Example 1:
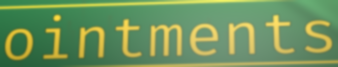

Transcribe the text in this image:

ointments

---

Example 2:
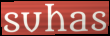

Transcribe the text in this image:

suhas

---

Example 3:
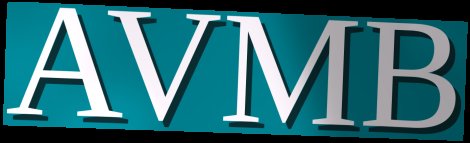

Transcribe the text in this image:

AVMB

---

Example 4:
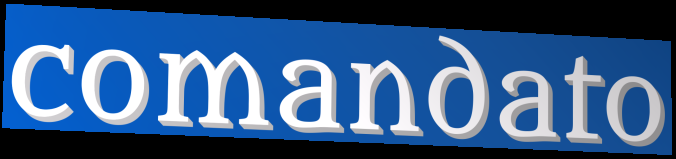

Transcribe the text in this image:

comandato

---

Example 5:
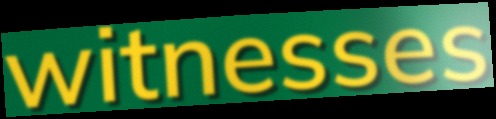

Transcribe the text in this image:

witnesses